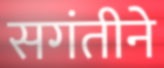
सगंतीने